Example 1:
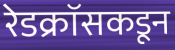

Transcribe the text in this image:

रेडक्रॉसकडून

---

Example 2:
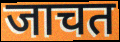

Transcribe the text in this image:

जाचत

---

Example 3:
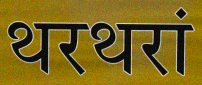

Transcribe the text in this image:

थरथरां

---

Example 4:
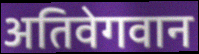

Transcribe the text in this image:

अतिवेगवान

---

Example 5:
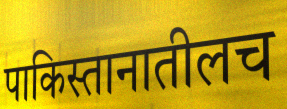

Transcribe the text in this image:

पाकिस्तानातीलच